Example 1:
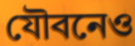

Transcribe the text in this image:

যৌবনেও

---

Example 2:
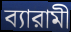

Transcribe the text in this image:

ব্যারামী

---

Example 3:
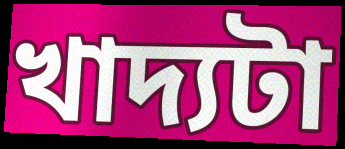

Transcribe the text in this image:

খাদ্যটা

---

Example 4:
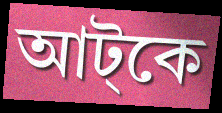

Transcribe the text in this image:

আট্কে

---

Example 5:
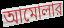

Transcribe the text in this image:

আমোলার